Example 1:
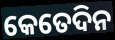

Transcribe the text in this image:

କେତେଦିନ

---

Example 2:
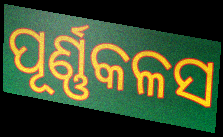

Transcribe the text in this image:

ପୂର୍ଣ୍ଣକଳସ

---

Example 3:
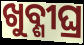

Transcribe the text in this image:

ଖୁବ୍ଶୀଘ୍ର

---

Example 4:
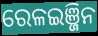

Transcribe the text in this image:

ରେଳଇଞ୍ଜିନ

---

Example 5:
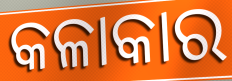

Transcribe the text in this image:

କଳାକାର